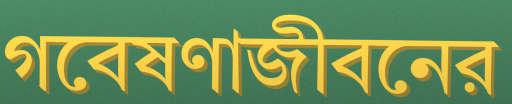
গবেষণাজীবনের